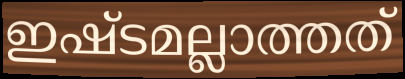
ഇഷ്ടമല്ലാത്തത്